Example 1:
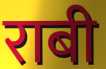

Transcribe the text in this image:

राबी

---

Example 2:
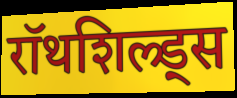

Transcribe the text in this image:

रॉथशिल्ड्स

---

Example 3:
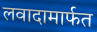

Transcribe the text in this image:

लवादामार्फत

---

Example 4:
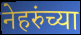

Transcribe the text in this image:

नेहरुंच्या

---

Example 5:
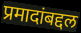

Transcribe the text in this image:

प्रमादांबद्दल